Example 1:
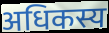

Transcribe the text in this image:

अधिकस्य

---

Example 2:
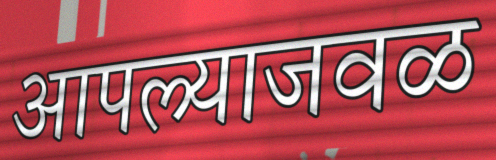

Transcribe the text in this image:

आपल्याजवळ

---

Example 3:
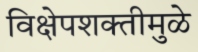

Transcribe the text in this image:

विक्षेपशक्तीमुळे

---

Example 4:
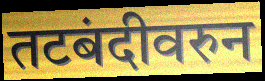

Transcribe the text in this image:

तटबंदीवरुन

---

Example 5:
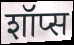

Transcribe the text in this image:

शॉप्स